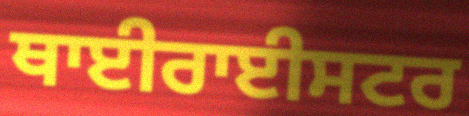
ਥਾਈਰਾਈਸਟਰ